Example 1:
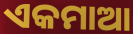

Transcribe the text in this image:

ଏକମାଆ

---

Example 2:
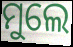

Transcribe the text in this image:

ମୁଲେ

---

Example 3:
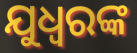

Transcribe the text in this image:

ଯୁଧ୍ଵରଙ୍କ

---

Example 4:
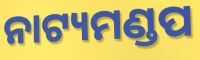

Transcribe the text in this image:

ନାଟ୍ୟମଣ୍ଡପ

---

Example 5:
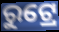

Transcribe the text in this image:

ରୁଟ୍ରେ